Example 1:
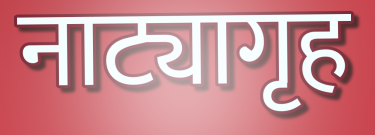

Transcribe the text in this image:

नाट्यागृह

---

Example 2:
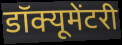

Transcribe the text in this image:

डॉक्यूमेंटरी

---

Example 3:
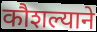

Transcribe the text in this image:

कौशल्याने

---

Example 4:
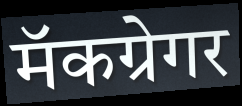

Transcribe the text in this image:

मॅकग्रेगर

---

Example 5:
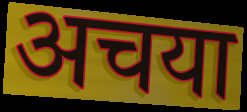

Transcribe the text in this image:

अचया